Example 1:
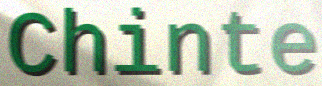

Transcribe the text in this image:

Chinte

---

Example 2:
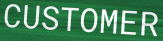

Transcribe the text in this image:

CUSTOMER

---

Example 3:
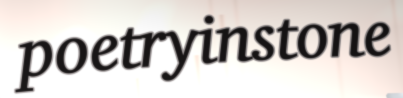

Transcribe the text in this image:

poetryinstone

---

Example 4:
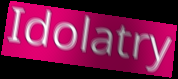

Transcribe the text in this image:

Idolatry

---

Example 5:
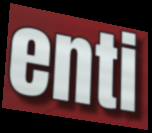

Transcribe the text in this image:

enti